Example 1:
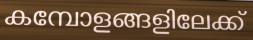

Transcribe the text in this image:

കമ്പോളങ്ങളിലേക്ക്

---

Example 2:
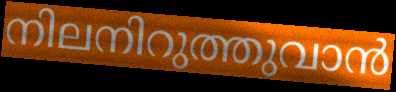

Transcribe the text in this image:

നിലനിറുത്തുവാൻ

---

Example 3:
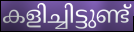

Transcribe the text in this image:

കളിച്ചിട്ടുണ്ട്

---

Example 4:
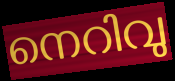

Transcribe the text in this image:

നെറിവു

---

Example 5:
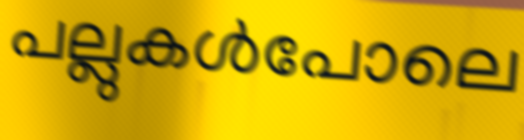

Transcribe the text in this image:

പല്ലുകൾപോലെ